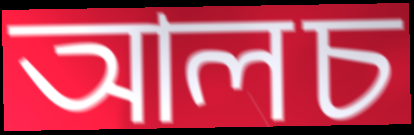
আলচ